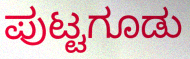
ಪುಟ್ಟಗೂಡು